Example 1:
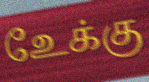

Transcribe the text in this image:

உேக்கு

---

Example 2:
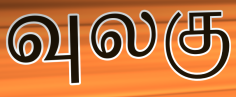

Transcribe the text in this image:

வுலகு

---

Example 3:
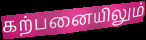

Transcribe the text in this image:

கற்பனையிலும்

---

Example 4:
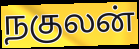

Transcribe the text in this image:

நகுலன்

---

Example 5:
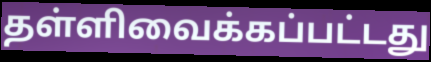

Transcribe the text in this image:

தள்ளிவைக்கப்பட்டது